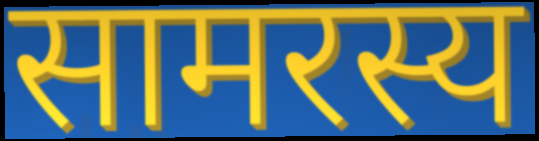
सामरस्य